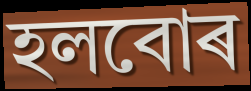
হলবোৰ